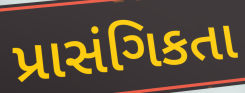
પ્રાસંગિકતા